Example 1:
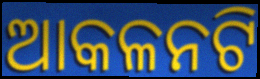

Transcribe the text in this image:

ଆକଳନଟି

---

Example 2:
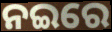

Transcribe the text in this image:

ନଇରେ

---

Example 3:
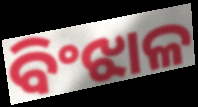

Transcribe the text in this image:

ବିଂଝାଳ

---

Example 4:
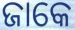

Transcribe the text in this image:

ଜାକେ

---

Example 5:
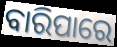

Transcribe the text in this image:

ବାରିପାରେ